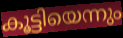
കൂട്ടിയെന്നും